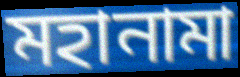
মহানামা